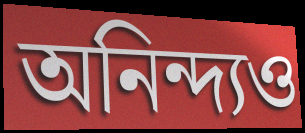
অনিন্দ্যও